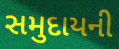
સમુદાયની